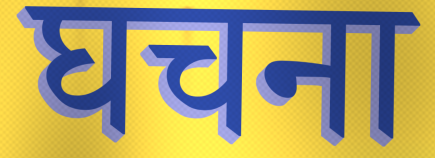
घचना